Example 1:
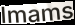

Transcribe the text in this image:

Imams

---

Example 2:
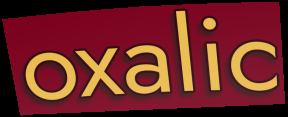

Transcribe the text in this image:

oxalic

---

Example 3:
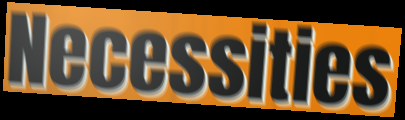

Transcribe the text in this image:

Necessities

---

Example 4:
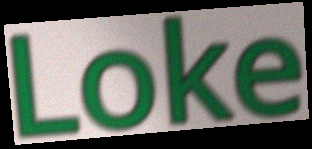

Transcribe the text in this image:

Loke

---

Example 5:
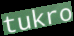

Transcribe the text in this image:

tukro